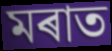
মৰাত